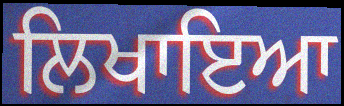
ਲਿਖਾਇਆ